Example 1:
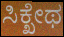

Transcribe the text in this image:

ಸಿಕ್ಖೇಥ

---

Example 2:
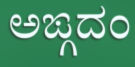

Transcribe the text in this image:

ಅಙ್ಗದಂ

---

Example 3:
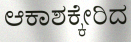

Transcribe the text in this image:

ಆಕಾಶಕ್ಕೇರಿದ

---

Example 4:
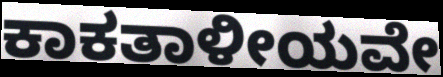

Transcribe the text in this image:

ಕಾಕತಾಳೀಯವೇ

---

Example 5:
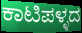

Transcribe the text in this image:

ಕಾಟಿಪಳ್ಳದ